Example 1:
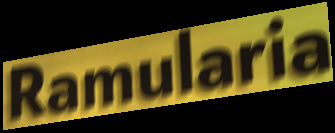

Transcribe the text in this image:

Ramularia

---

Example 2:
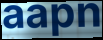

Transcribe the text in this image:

aapn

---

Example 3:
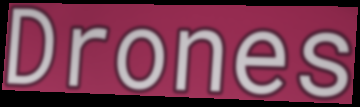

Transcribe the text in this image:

Drones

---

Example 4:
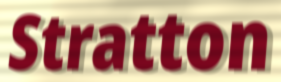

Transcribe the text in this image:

Stratton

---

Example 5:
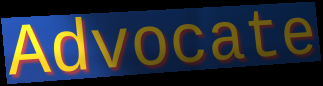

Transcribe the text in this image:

Advocate